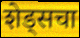
शेड्सचा